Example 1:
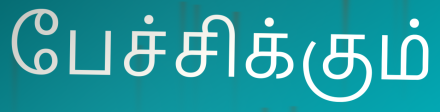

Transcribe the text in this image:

பேச்சிக்கும்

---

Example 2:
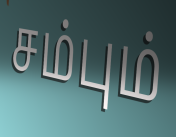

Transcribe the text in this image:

சம்பும்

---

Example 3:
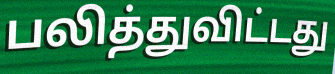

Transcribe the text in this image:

பலித்துவிட்டது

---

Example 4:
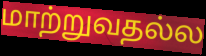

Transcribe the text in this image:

மாற்றுவதல்ல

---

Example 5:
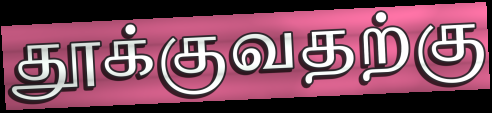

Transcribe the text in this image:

தூக்குவதற்கு